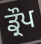
ਡ੍ਰੌਪ